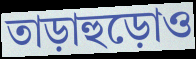
তাড়াহুড়োও